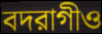
বদরাগীও